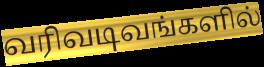
வரிவடிவங்களில்